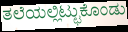
ತಲೆಯಲ್ಲಿಟ್ಟುಕೊಂಡು